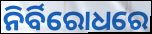
ନିର୍ବିରୋଧରେ